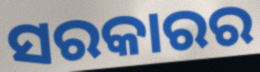
ସରକାରର